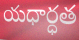
యధార్ధత